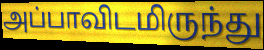
அப்பாவிடமிருந்து